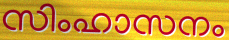
സിംഹാസനം